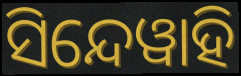
ସିନ୍ଦେୱାହି